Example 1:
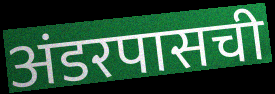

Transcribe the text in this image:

अंडरपासची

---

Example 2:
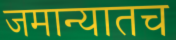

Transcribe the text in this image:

जमान्यातच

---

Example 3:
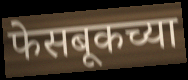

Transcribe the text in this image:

फेसबूकच्या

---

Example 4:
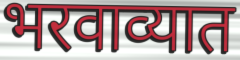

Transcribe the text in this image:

भरवाव्यात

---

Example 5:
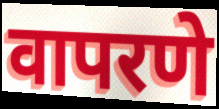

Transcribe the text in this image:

वापरणे